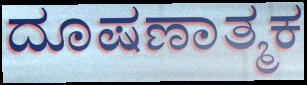
ದೂಷಣಾತ್ಮಕ